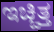
ಇಚ್ಚಿತ್ತ